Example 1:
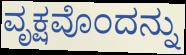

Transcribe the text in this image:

ವೃಕ್ಷವೊಂದನ್ನು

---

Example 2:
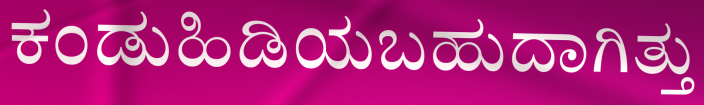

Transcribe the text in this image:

ಕಂಡುಹಿಡಿಯಬಹುದಾಗಿತ್ತು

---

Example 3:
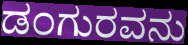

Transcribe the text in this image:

ಡಂಗುರವನು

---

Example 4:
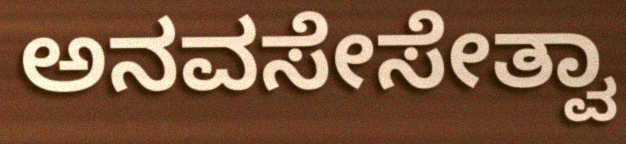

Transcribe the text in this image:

ಅನವಸೇಸೇತ್ವಾ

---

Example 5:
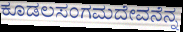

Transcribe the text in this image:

ಕೂಡಲಸಂಗಮದೇವನೆನ್ನ